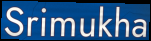
Srimukha